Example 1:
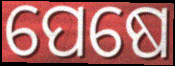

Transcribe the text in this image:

ପେଷେ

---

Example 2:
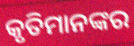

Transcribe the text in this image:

କୃତିମାନଙ୍କର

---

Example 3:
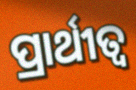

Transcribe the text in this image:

ପ୍ରାର୍ଥୀତ୍ଵ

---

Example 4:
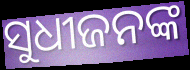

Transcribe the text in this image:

ସୁଧୀଜନଙ୍କ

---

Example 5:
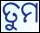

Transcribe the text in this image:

ତୁମ